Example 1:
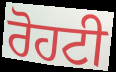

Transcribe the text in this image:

ਰੋਹਟੀ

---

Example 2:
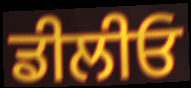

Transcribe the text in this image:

ਡੀਲੀਓ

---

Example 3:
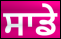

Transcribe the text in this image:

ਸਾਡੇ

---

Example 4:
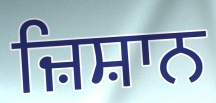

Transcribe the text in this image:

ਜ਼ਿਸ਼ਾਨ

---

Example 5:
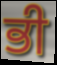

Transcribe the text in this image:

ਭੀ